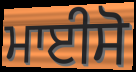
ਮਾਈਸੋ